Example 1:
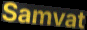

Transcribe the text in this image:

Samvat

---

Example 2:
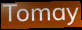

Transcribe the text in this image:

Tomay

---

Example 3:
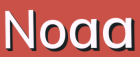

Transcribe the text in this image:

Noaa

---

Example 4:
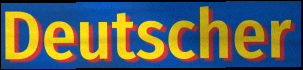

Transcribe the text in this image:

Deutscher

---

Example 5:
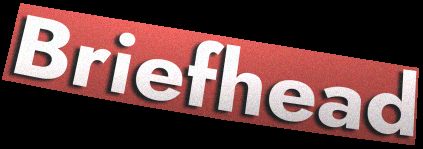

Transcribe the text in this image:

Briefhead